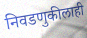
निवडणुकीलाही